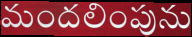
మందలింపును